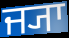
ਜ੍ਯਾ